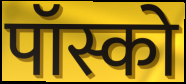
पॉस्को